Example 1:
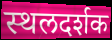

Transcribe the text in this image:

स्थलदर्शक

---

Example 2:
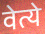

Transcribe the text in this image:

वेत्ये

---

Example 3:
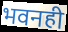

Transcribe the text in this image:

भवनही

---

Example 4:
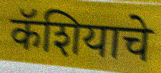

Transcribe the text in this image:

कॅशियाचे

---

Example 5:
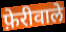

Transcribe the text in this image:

फ़ेरीवाले